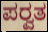
ಪರ್‍ವತ